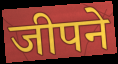
जीपने